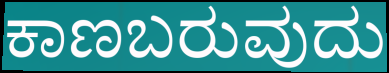
ಕಾಣಬರುವುದು